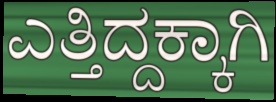
ಎತ್ತಿದ್ದಕ್ಕಾಗಿ